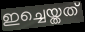
ഇച്ചെയ്തത്